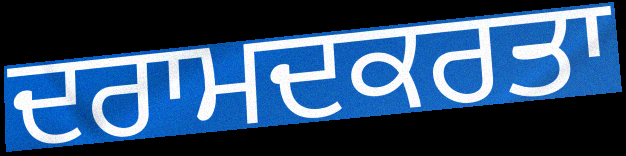
ਦਰਾਮਦਕਰਤਾ